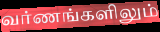
வர்ணங்களிலும்